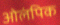
ओलंपिक